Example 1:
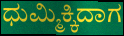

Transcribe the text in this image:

ಧುಮ್ಮಿಕ್ಕಿದಾಗ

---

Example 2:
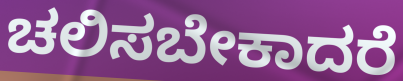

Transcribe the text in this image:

ಚಲಿಸಬೇಕಾದರೆ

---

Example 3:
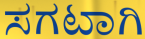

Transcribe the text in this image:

ಸಗಟಾಗಿ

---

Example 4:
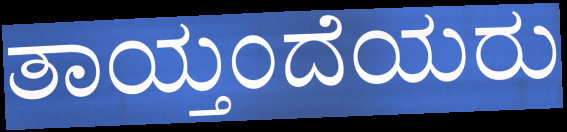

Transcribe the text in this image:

ತಾಯ್ತಂದೆಯರು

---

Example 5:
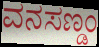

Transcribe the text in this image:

ವನಸಣ್ಡಂ